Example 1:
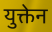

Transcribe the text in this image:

युक्तेन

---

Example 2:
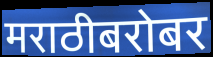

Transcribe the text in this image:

मराठीबरोबर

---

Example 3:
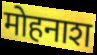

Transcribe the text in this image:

मोहनाश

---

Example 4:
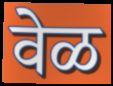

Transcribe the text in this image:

वेळ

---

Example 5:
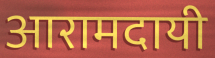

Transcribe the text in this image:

आरामदायी